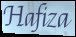
Hafiza